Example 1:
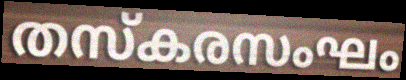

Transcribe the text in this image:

തസ്കരസംഘം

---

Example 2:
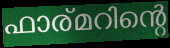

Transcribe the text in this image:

ഫാര്മറിന്റെ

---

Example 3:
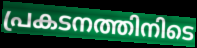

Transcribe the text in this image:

പ്രകടനത്തിനിടെ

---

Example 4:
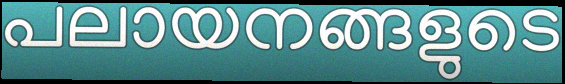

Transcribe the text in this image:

പലായനങ്ങളുടെ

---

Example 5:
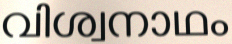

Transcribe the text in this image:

വിശ്വനാഥം